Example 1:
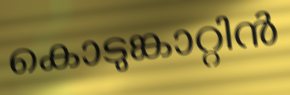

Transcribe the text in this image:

കൊടുങ്കാറ്റിൻ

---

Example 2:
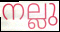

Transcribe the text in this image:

നല്ലു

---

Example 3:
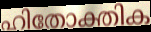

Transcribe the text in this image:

ഹിതോക്തിക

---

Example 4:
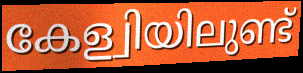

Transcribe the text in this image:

കേള്വിയിലുണ്ട്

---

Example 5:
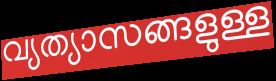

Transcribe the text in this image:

വ്യത്യാസങ്ങളുള്ള